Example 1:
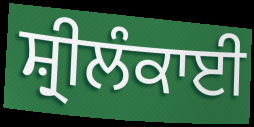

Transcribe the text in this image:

ਸ਼੍ਰੀਲੰਕਾਈ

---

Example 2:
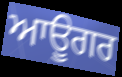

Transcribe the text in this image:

ਆਊਗਰ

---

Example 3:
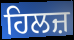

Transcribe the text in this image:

ਹਿਲਜ਼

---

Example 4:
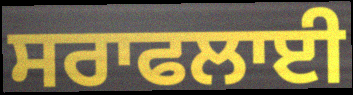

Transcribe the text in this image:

ਸਰਾਫਲਾਈ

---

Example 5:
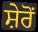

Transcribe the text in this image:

ਸ਼ੇਰੋਂ